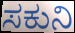
ಸಕುನಿ